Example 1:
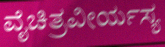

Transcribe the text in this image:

ವೈಚಿತ್ರವೀರ್ಯಸ್ಯ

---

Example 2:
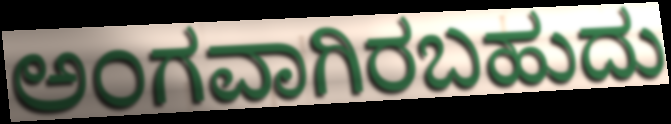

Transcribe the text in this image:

ಅಂಗವಾಗಿರಬಹುದು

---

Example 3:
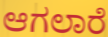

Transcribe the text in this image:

ಆಗಲಾರೆ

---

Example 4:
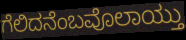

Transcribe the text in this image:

ಗೆಲಿದನೆಂಬವೊಲಾಯ್ತು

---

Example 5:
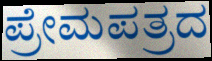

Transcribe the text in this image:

ಪ್ರೇಮಪತ್ರದ